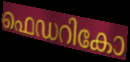
ഫെഡറികോ